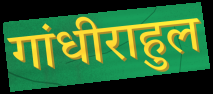
गांधीराहुल